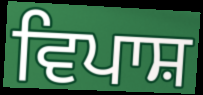
ਵਿਪਾਸ਼